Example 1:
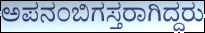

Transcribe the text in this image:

ಅಪನಂಬಿಗಸ್ತರಾಗಿದ್ದರು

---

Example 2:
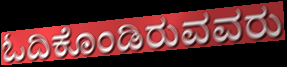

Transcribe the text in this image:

ಓದಿಕೊಂಡಿರುವವರು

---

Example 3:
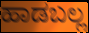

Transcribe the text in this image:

ಹಾಡಬಲ್ಲ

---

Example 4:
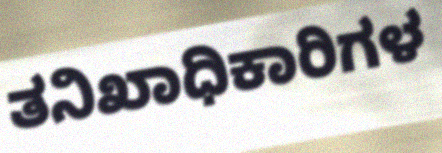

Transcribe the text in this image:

ತನಿಖಾಧಿಕಾರಿಗಳ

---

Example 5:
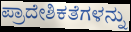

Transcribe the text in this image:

ಪ್ರಾದೇಶಿಕತೆಗಳನ್ನು